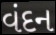
વંદન